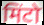
मिंटो